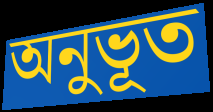
অনুভূত